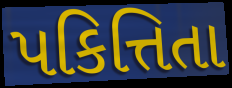
પકિત્તિતા